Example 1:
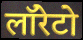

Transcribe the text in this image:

लॉरेटो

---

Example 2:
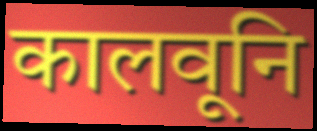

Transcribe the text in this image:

कालवूनि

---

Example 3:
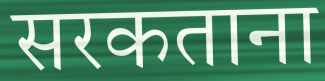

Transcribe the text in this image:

सरकताना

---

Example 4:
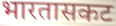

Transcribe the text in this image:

भारतासकट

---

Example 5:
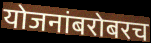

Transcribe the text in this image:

योजनांबरोबरच